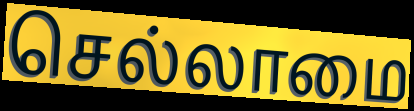
செல்லாமை